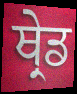
ਥ੍ਰੇਡ